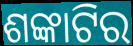
ଶଙ୍କାଟିର